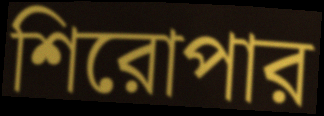
শিরোপার